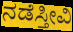
ನಡೆಸ್ತೀವಿ